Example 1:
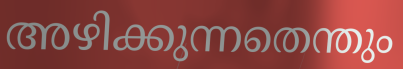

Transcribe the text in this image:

അഴിക്കുന്നതെന്തും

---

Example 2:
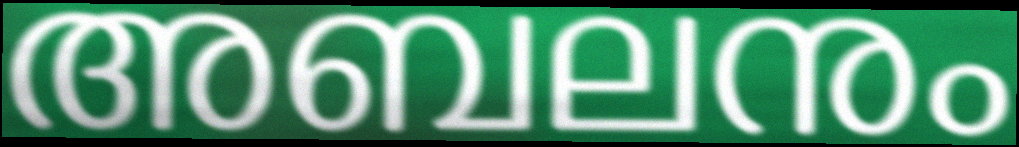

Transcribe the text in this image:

അബലനും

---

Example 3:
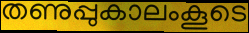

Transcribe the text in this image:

തണുപ്പുകാലംകൂടെ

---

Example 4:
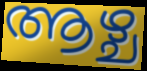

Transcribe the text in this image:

ആഴ്ച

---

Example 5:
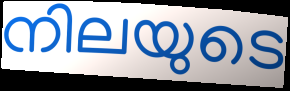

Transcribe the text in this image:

നിലയുടെ